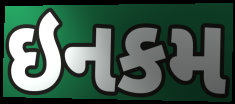
ઇનકમ